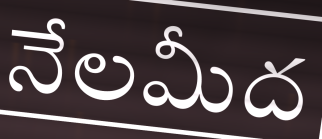
నేలమీద